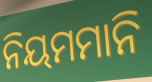
ନିୟମମାନି